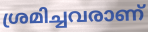
ശ്രമിച്ചവരാണ്